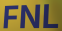
FNL